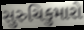
સુરુચિકુમારો